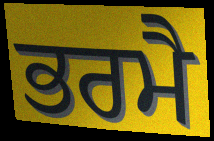
ਭਰਮੈ